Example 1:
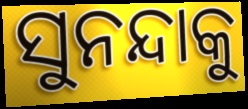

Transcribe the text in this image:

ସୁନନ୍ଦାକୁ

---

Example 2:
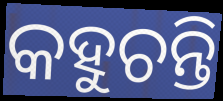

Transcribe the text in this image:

କହୁଚନ୍ତି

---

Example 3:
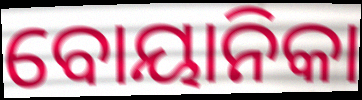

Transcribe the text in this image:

ବୋୟାନିକା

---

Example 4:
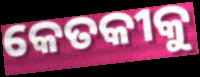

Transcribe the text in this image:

କେତକୀକୁ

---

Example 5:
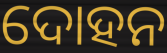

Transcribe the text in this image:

ଦୋହନ